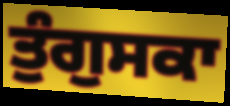
ਤੁੰਗੁਸਕਾ